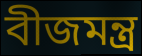
বীজমন্ত্র